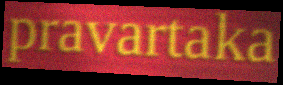
pravartaka